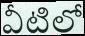
వీటిలో